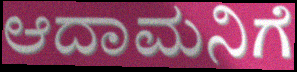
ಆದಾಮನಿಗೆ